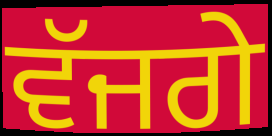
ਵੱਜਗੇ